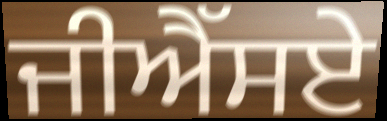
ਜੀਐੱਸਏ